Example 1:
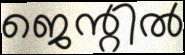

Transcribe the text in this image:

ജെന്റിൽ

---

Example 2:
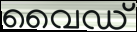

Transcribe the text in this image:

വൈഡ്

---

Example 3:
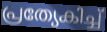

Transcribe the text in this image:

പ്രത്യേകിച്ച്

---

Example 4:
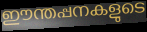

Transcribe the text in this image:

ഈന്തപ്പനകളുടെ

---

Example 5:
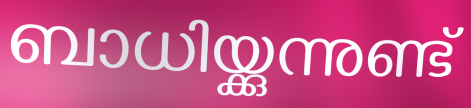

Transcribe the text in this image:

ബാധിയ്ക്കുന്നുണ്ട്